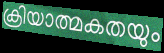
ക്രിയാത്മകതയും